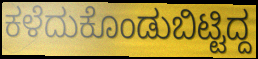
ಕಳೆದುಕೊಂಡುಬಿಟ್ಟಿದ್ದ